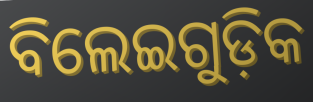
ବିଲେଇଗୁଡ଼ିକ